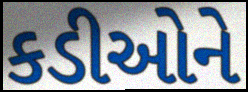
કડીઓને